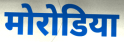
मोरोडिया